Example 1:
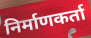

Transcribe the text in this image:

निर्माणकर्ता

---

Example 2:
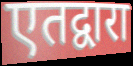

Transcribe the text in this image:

एतद्वारा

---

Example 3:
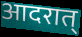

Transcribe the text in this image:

आदरात्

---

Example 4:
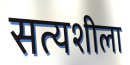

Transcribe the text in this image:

सत्यशीला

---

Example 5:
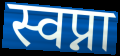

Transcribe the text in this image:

स्वप्ना